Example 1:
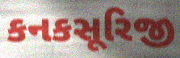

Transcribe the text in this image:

કનકસૂરિજી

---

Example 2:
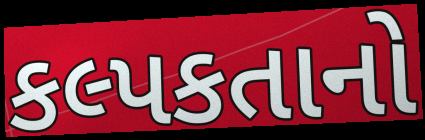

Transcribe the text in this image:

કલ્પકતાનો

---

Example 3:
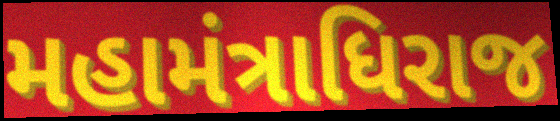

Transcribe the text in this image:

મહામંત્રાધિરાજ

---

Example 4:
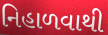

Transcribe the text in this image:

નિહાળવાથી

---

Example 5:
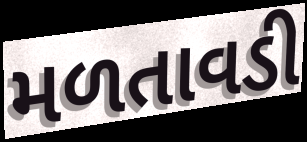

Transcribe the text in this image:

મળતાવડી